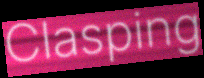
Clasping